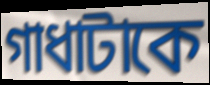
গাধাটাকে